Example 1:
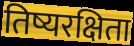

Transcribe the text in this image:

तिष्यरक्षिता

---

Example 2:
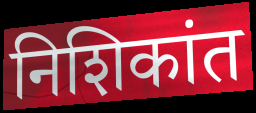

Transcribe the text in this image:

निशिकांत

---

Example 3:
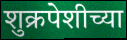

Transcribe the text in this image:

शुक्रपेशीच्या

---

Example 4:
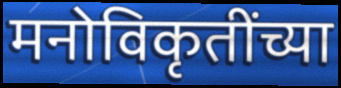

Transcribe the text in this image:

मनोविकृतींच्या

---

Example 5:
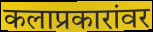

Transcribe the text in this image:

कलाप्रकारांवर